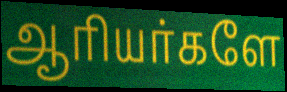
ஆரியர்களே